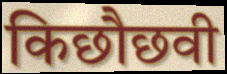
किछौछवी